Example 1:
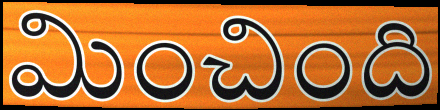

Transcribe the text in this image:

మించింది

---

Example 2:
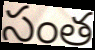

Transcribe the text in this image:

సంత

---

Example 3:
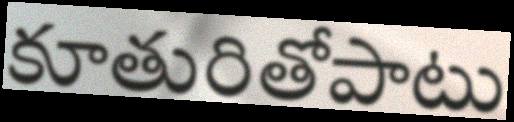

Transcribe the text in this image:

కూతురితోపాటు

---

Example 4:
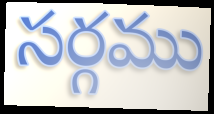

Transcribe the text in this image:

సర్గము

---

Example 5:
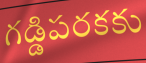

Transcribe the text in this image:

గడ్డిపరకకు